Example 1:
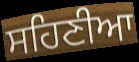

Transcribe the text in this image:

ਸਹਿਣੀਆ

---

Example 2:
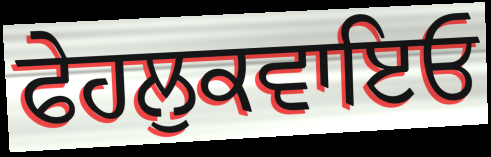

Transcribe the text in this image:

ਫੇਹਲੁਕਵਾਇਓ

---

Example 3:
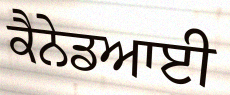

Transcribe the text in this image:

ਕੈਨੇਡਆਈ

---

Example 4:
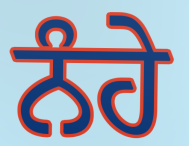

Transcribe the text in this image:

ਨੰਹੇ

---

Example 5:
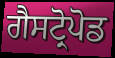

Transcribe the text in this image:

ਗੈਸਟ੍ਰੋਪੋਡ